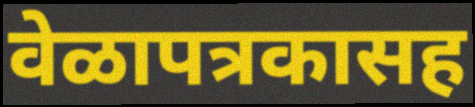
वेळापत्रकासह